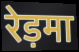
रेड़मा